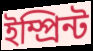
ইম্প্ৰিন্ট